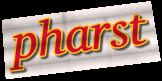
pharst